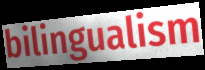
bilingualism